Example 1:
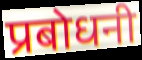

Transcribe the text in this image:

प्रबोधनी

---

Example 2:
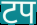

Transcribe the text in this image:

टप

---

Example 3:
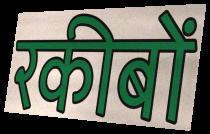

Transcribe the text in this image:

रकीबों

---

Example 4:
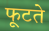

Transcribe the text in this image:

फूटते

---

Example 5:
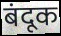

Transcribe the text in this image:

बंदूक